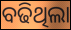
ବଢିଥିଲା